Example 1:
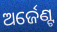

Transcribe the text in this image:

ଅର୍ଜେଣ୍ଟ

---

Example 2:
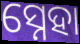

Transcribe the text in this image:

ସ୍ନେହା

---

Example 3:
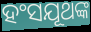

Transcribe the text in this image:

ହଂସଯୂଥଙ୍କ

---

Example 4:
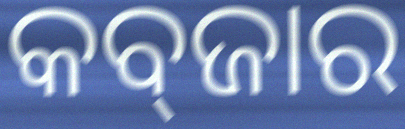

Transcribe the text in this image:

କବ୍‍ଜାର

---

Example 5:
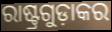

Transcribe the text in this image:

ରାଷ୍ଟ୍ରଗୁଡ଼ାକର